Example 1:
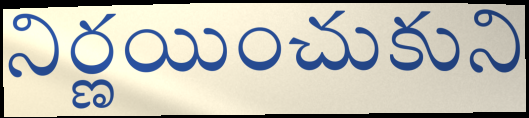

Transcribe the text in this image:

నిర్ణయించుకుని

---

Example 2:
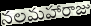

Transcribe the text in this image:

నలమహారాజు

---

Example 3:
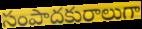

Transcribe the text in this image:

సంపాదకురాలుగా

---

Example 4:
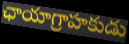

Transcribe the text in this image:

ఛాయాగ్రాహకుడు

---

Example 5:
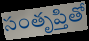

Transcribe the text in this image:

సంతృప్తితో